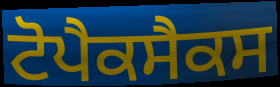
ਟੋਪੈਕਸੈਕਸ